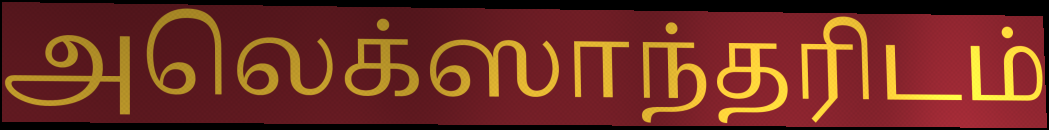
அலெக்ஸாந்தரிடம்